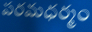
పరమధర్మం